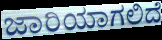
ಜಾರಿಯಾಗಲಿದೆ